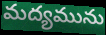
మద్యమును